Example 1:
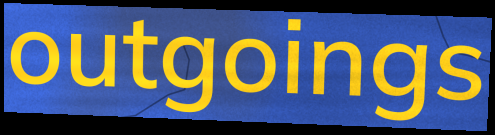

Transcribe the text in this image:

outgoings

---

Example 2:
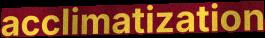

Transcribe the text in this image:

acclimatization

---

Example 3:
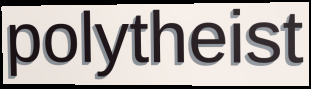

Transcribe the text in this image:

polytheist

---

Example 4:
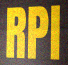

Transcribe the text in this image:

RPI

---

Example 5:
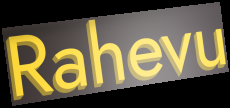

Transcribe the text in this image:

Rahevu